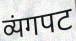
व्यंगपट